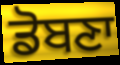
ਡੋਬਣਾ